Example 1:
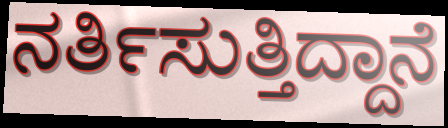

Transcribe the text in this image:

ನರ್ತಿಸುತ್ತಿದ್ದಾನೆ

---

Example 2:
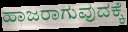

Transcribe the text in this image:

ಹಾಜರಾಗುವುದಕ್ಕೆ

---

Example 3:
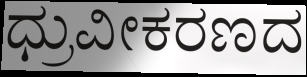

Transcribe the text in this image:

ಧ್ರುವೀಕರಣದ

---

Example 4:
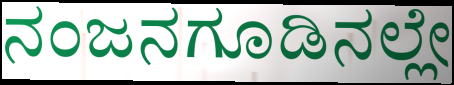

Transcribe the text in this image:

ನಂಜನಗೂಡಿನಲ್ಲೇ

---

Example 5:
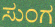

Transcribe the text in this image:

ಸುಂಗ